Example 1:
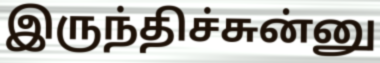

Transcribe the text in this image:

இருந்திச்சுன்னு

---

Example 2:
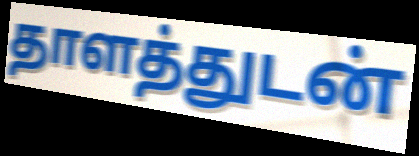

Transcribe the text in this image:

தாளத்துடன்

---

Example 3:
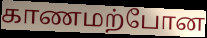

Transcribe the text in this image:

காணமற்போன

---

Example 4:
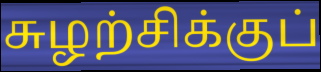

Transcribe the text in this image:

சுழற்சிக்குப்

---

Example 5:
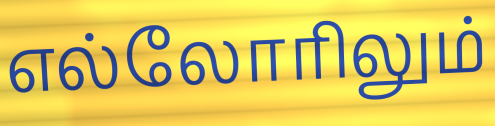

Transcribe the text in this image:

எல்லோரிலும்